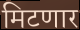
मिटणार